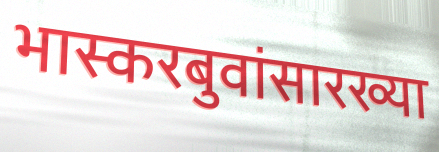
भास्करबुवांसारख्या